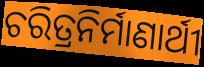
ଚରିତ୍ରନିର୍ମାଣାର୍ଥୀ